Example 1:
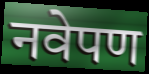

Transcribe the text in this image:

नवेपण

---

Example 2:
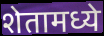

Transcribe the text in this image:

शेतामध्ये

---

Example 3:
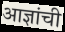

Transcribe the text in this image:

आज्ञांची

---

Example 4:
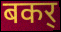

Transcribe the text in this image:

बकर्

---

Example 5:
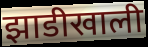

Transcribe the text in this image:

झाडीखाली